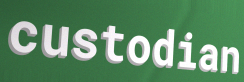
custodian